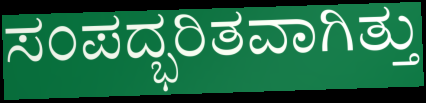
ಸಂಪದ್ಭರಿತವಾಗಿತ್ತು